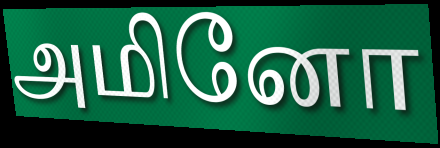
அமினோ